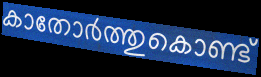
കാതോർത്തുകൊണ്ട്